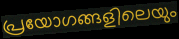
പ്രയോഗങ്ങളിലെയും